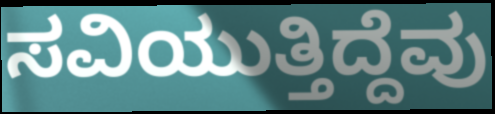
ಸವಿಯುತ್ತಿದ್ದೆವು